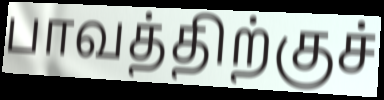
பாவத்திற்குச்